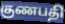
குணபதி